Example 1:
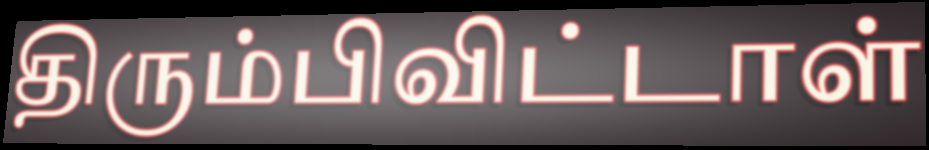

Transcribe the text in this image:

திரும்பிவிட்டாள்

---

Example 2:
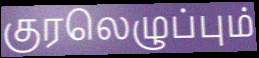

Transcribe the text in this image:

குரலெழுப்பும்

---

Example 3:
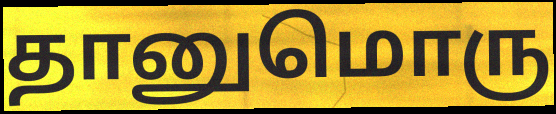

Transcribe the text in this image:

தானுமொரு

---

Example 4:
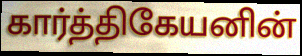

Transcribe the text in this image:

கார்த்திகேயனின்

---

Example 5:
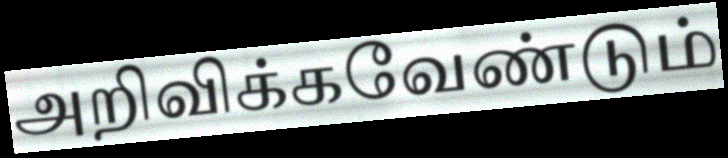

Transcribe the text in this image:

அறிவிக்கவேண்டும்